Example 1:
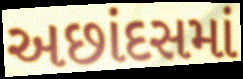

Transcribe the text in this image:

અછાંદસમાં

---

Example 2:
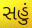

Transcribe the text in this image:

સહું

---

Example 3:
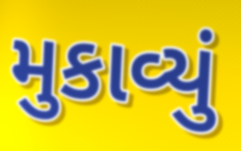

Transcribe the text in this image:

મુકાવ્યું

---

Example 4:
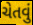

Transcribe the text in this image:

ચેતવું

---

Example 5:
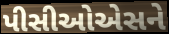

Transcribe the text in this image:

પીસીઓએસને